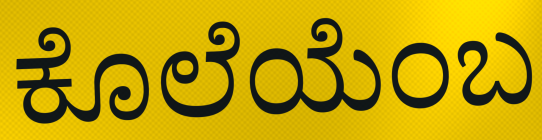
ಕೊಲೆಯೆಂಬ